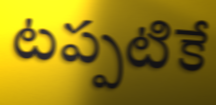
టప్పటికే